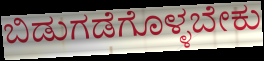
ಬಿಡುಗಡೆಗೊಳ್ಳಬೇಕು